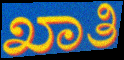
ಖಾತಿ